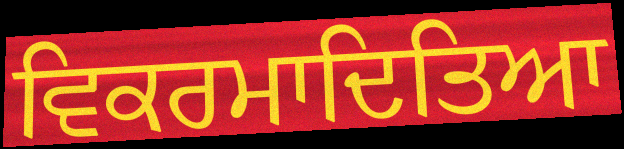
ਵਿਕਰਮਾਦਿਤਿਆ